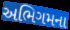
અભિગમના